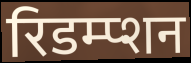
रिडम्प्शन